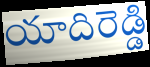
యాదిరెడ్డి